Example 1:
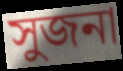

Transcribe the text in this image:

সুজনা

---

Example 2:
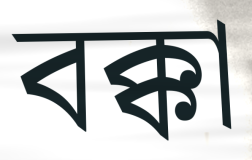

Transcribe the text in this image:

বক্কা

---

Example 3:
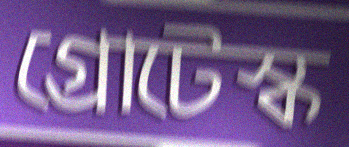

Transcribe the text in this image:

গ্রোটেস্ক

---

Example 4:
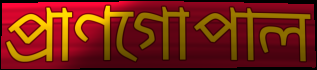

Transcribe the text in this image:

প্রাণগোপাল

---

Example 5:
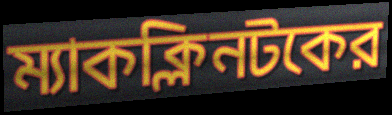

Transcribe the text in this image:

ম্যাকক্লিনটকের